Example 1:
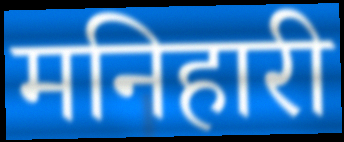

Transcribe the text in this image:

मनिहारी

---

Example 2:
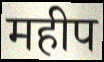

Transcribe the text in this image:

महीप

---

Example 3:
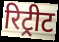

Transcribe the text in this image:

रिट्रीट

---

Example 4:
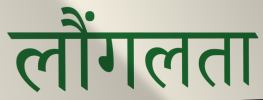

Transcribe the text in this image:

लौंगलता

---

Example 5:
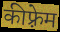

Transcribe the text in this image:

कीफ़्रेम